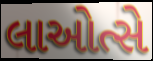
લાઓત્સે